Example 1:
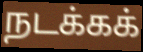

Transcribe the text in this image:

நடக்கக்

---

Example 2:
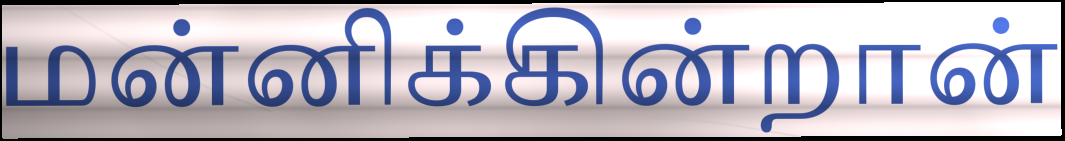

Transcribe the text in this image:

மன்னிக்கின்றான்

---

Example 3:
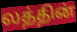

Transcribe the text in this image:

லத்தின்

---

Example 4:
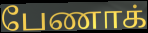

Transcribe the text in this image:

பேணாக்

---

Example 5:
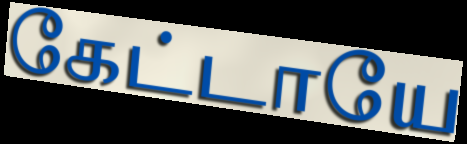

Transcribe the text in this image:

கேட்டாயே